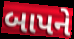
બાપને